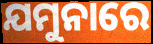
ଯମୁନାରେ